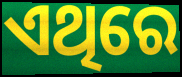
ଏଥିରେ